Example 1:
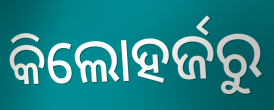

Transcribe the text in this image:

କିଲୋହର୍ଜରୁ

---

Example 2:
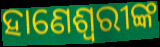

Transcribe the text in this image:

ହାଣେଶ୍ୱରୀଙ୍କ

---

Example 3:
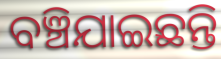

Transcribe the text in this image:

ବଞ୍ଚିଯାଇଛନ୍ତି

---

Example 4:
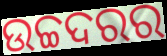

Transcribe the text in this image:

ଉଚ୍ଚଦରର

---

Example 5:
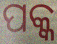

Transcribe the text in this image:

ପକ୍କ